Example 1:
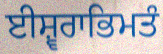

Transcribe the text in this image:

ਈਸ਼੍ਵਰਾਭਿਮਤੰ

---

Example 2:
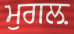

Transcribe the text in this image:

ਮੁਗਲ਼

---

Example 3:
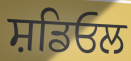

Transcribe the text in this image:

ਸ਼ਡਿਓਲ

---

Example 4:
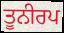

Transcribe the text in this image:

ਤੂਨੀਰਪ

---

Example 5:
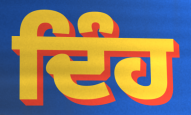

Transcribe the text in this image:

ਦਿੰਹ